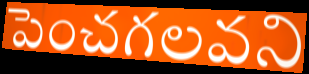
పెంచగలవని